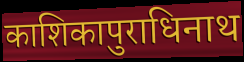
काशिकापुराधिनाथ